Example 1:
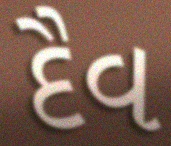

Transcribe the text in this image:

દૈવ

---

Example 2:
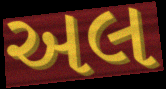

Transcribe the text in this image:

અલ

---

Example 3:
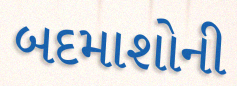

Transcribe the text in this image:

બદમાશોની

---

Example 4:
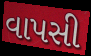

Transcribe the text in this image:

વાપસી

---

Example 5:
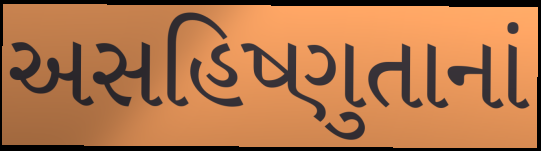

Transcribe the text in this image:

અસહિષ્ણુતાનાં